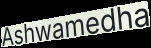
Ashwamedha